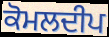
ਕੋਮਲਦੀਪ